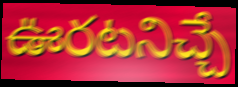
ఊరటనిచ్చే